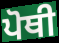
ਪੋਥੀ